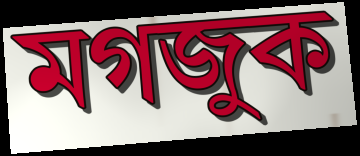
মগজুক